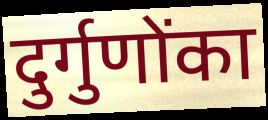
दुर्गुणोंका